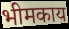
भीमकाय